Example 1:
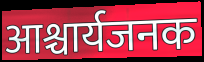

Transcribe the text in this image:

आश्चार्यजनक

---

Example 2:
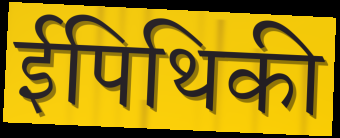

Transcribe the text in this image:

ईपिथिकी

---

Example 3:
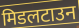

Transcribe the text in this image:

मिडलटाउन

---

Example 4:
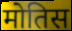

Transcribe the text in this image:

मोतिस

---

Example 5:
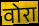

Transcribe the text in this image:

वोरा